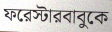
ফরেস্টারবাবুকে